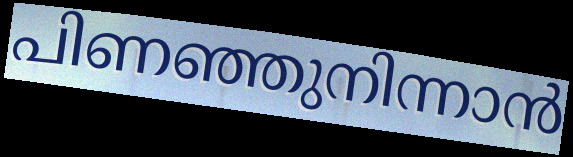
പിണഞ്ഞുനിന്നാൻ